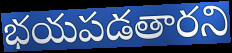
భయపడతారని